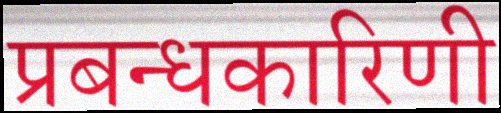
प्रबन्धकारिणी